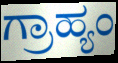
ಗ್ರಾಹ್ಯಂ